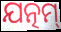
ଯତ୍ନମ୍